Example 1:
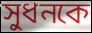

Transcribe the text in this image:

সুধনকে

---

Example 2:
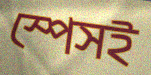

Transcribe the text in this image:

স্পেসই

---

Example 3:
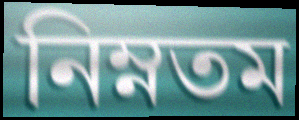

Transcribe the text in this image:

নিম্নতম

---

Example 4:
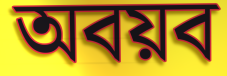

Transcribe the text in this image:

অবয়ব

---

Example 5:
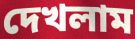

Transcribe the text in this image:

দেখলাম